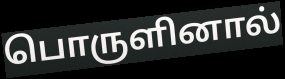
பொருளினால்